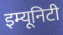
इम्‍यूनिटी